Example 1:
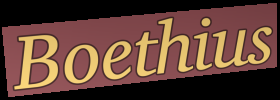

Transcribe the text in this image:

Boethius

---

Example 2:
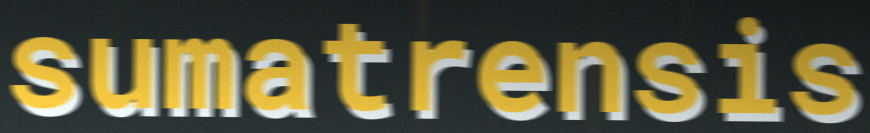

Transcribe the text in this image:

sumatrensis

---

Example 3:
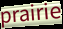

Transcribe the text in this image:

prairie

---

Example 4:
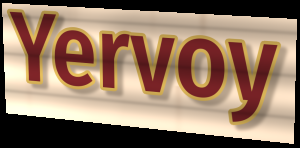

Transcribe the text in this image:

Yervoy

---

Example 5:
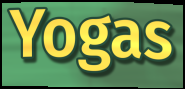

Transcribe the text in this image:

Yogas